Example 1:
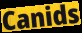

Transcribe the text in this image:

Canids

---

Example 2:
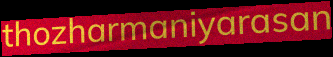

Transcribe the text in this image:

thozharmaniyarasan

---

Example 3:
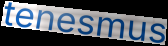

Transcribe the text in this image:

tenesmus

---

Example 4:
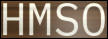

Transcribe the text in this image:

HMSO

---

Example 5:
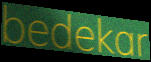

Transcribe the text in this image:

bedekar